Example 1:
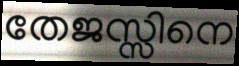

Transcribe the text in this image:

തേജസ്സിനെ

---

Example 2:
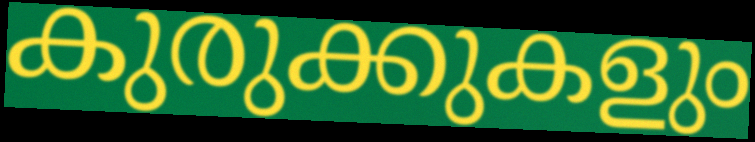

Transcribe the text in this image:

കുരുക്കുകളും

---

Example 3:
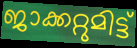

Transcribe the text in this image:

ജാക്കറ്റുമിട്ട്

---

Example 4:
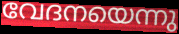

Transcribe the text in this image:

വേദനയെന്നു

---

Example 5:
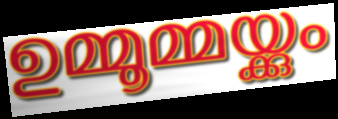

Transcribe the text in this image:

ഉമ്മൂമ്മയ്ക്കും